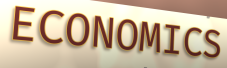
ECONOMICS